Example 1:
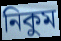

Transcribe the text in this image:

নিকুম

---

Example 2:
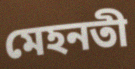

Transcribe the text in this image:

মেহনতী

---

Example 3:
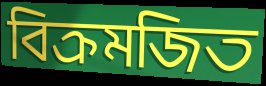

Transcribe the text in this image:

বিক্রমজিত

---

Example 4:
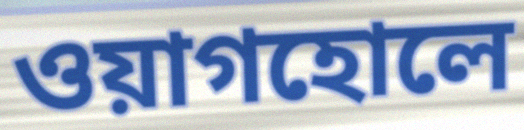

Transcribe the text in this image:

ওয়াগহোলে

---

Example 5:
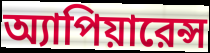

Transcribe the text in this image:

অ্যাপিয়ারেন্স